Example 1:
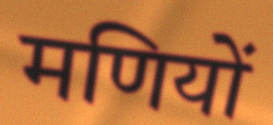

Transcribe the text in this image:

मणियों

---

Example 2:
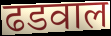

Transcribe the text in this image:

ढडवाल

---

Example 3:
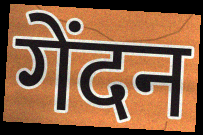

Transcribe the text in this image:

गेंदन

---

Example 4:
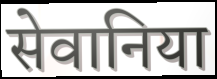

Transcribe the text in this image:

सेवानिया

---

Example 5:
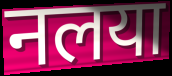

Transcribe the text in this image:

नलया